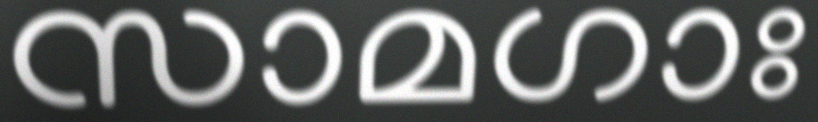
സാമഗാഃ